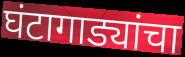
घंटागाड्यांचा